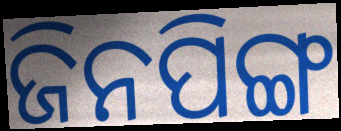
ଜିନପିଙ୍ଗ